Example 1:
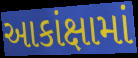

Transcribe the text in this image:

આકાંક્ષામાં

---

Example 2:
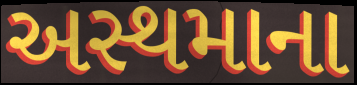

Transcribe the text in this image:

અસ્થમાના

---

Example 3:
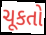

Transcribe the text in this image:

ચૂકતો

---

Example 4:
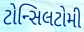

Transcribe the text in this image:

ટોન્સિલટોમી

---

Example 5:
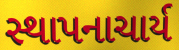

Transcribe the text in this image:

સ્થાપનાચાર્ય